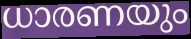
ധാരണയും